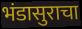
भंडासुराचा